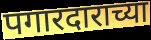
पगारदाराच्या